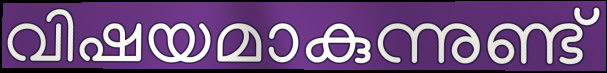
വിഷയമാകുന്നുണ്ട്